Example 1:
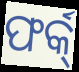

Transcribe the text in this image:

ଫର୍କ୍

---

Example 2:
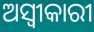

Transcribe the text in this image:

ଅସ୍ଵୀକାରୀ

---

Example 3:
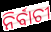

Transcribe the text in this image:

ନିର୍ବାଚୀ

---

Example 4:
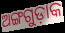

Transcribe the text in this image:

ଅଙ୍ଗଗୁଡ଼ାକ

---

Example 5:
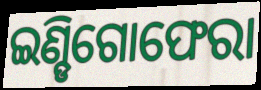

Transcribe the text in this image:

ଇଣ୍ଡିଗୋଫେରା